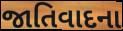
જાતિવાદના